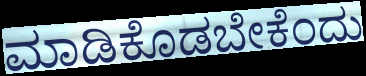
ಮಾಡಿಕೊಡಬೇಕೆಂದು